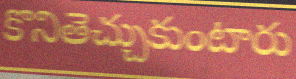
కొనితెచ్చుకుంటారు